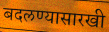
बदलण्यासारखी